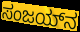
ಸಂಜಯ್‌ನ